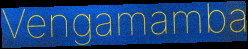
Vengamamba